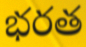
భరత